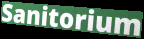
Sanitorium